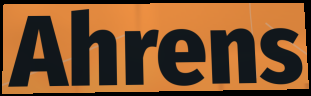
Ahrens